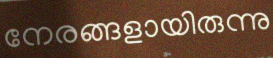
നേരങ്ങളായിരുന്നു